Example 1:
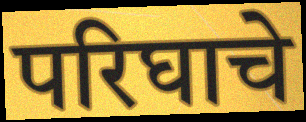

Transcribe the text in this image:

परिघाचे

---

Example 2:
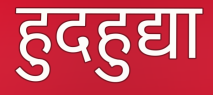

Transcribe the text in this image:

हुदहुद्या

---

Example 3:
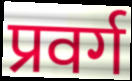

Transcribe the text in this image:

प्रवर्ग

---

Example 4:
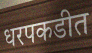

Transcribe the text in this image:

धरपकडीत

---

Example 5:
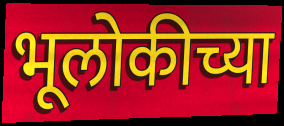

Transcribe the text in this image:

भूलोकीच्या